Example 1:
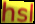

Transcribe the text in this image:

hsl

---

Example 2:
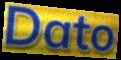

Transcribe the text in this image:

Dato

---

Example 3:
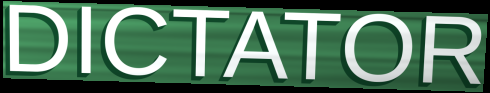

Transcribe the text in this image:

DICTATOR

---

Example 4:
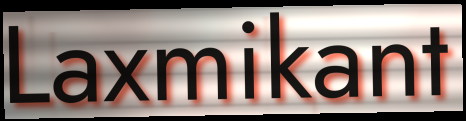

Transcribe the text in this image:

Laxmikant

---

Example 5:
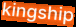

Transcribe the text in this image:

kingship